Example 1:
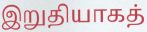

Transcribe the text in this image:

இறுதியாகத்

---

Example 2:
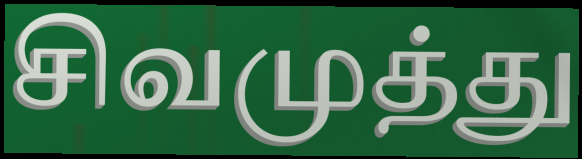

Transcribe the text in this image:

சிவமுத்து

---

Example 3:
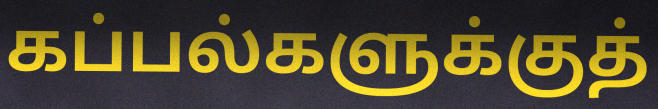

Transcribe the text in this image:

கப்பல்களுக்குத்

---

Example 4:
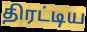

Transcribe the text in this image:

திரட்டிய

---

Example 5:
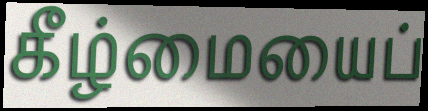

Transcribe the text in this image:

கீழ்மையைப்